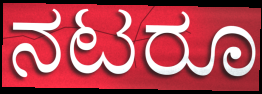
ನಟರೂ